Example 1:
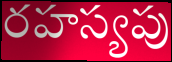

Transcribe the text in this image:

రహస్యపు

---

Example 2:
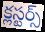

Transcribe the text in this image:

క్లస్టర్స్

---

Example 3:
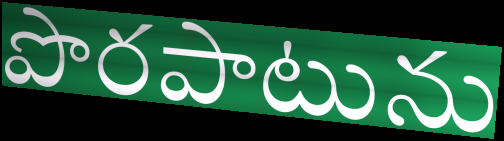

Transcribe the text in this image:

పొరపాటును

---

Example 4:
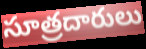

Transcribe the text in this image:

సూత్రదారులు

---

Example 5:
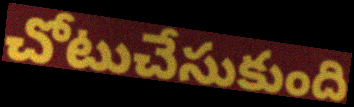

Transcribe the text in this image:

చోటుచేసుకుంది